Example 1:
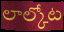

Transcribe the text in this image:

లాల్కోట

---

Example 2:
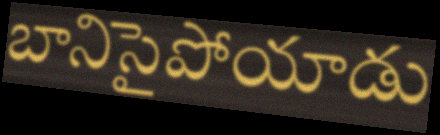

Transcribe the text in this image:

బానిసైపోయాడు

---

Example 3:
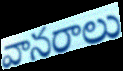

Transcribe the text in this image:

వానరాలు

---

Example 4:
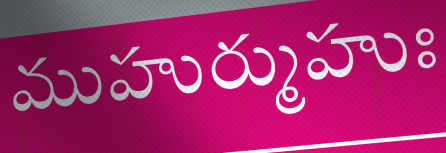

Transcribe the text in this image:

ముహుర్ముహుః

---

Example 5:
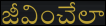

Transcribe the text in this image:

జీవించేలా